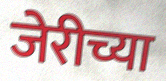
जेरीच्या